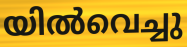
യിൽവെച്ചു